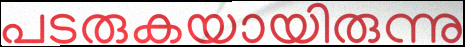
പടരുകയായിരുന്നു